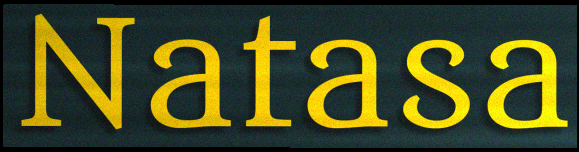
Natasa